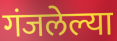
गंजलेल्या